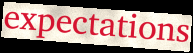
expectations